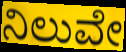
ನಿಲುವೇ